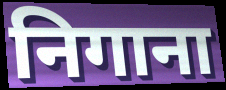
निगाना